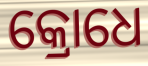
କ୍ରୋଧେ